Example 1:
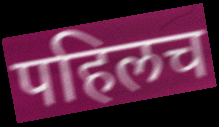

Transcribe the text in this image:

पहिलच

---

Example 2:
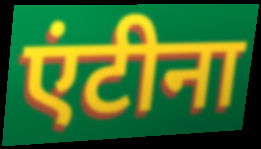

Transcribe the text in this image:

एंटीना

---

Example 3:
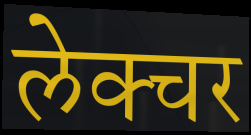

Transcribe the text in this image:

लेक्चर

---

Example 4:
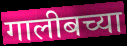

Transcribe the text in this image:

गालीबच्या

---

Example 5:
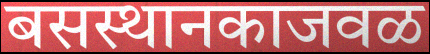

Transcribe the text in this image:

बसस्थानकाजवळ